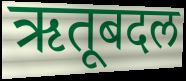
ऋतूबदल